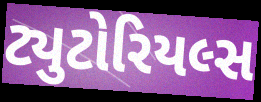
ટ્યુટોરિયલ્સ